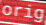
orig